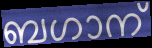
ബഗാന്